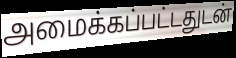
அமைக்கப்பட்டதுடன்